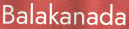
Balakanada